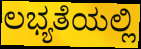
ಲಭ್ಯತೆಯಲ್ಲಿ